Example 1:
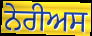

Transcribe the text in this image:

ਨੇਰੀਅਸ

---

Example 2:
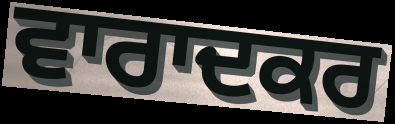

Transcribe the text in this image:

ਵਾਰਾਦਕਰ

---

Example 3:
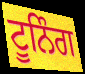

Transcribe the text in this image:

ਟੂਨਿੰਗ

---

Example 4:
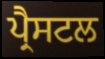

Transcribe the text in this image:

ਪ੍ਰੈਸਟਲ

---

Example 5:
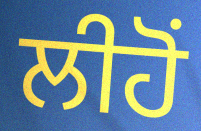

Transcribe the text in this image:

ਲੀਹੋਂ